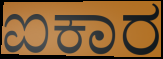
ಐಕಾರ